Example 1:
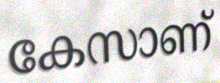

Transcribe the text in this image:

കേസാണ്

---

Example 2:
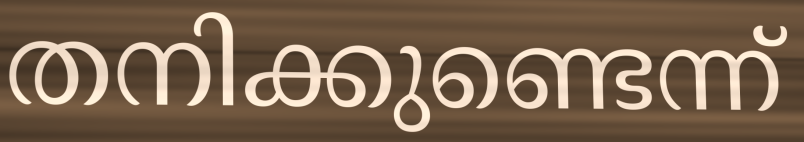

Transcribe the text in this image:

തനിക്കുണ്ടെന്ന്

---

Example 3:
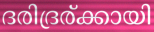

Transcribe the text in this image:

ദരിദ്രര്ക്കായി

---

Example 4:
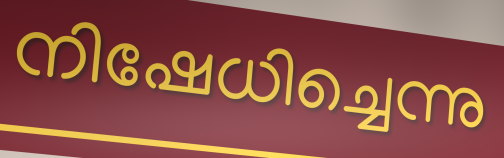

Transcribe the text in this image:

നിഷേധിച്ചെന്നു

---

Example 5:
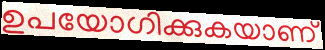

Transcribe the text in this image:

ഉപയോഗിക്കുകയാണ്